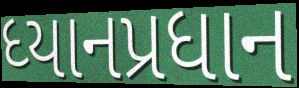
ધ્યાનપ્રધાન